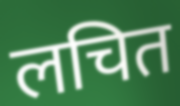
लचित